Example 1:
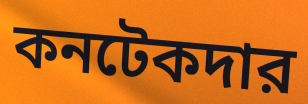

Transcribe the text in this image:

কনটেকদার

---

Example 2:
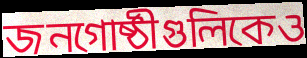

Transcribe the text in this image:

জনগোষ্ঠীগুলিকেও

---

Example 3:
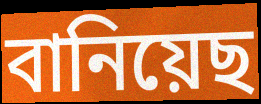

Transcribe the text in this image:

বানিয়েছ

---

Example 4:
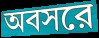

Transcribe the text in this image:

অবসরে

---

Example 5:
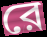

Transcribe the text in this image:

রে